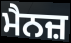
ਮੈਨਜ਼